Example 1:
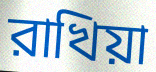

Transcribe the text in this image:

রাখিয়া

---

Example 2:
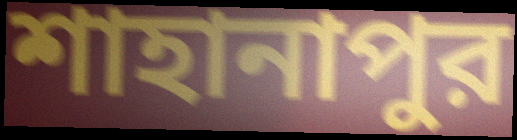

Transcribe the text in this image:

শাহানাপুর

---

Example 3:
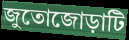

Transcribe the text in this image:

জুতোজোড়াটি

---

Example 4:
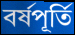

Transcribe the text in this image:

বর্ষপূর্তি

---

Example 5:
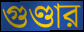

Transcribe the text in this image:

গুণ্ডার